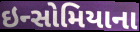
ઇન્સોમિયાના